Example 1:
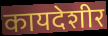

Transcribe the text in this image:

कायदेशीर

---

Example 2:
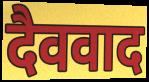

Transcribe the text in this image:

दैववाद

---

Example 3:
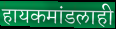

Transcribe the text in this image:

हायकमांडलाही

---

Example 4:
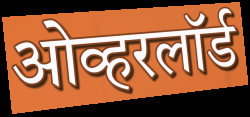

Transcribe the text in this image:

ओव्हरलॉर्ड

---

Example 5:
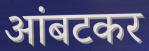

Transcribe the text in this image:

आंबटकर